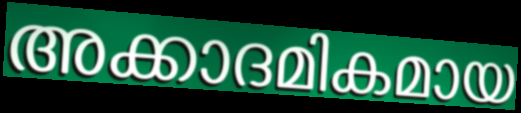
അക്കാദമികമായ